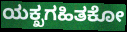
ಯಕ್ಖಗಹಿತಕೋ